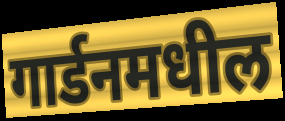
गार्डनमधील